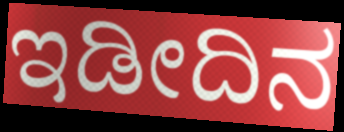
ಇಡೀದಿನ